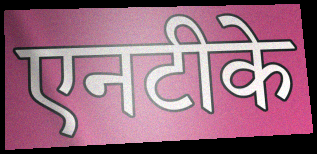
एनटीके